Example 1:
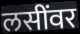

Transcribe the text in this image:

लसींवर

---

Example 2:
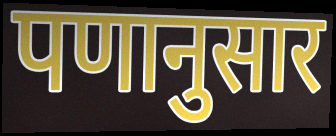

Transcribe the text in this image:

पणानुसार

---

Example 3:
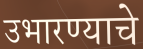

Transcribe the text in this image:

उभारण्याचे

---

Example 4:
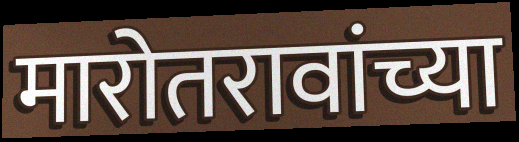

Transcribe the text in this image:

मारोतरावांच्या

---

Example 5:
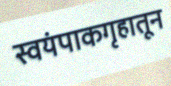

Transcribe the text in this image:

स्वयंपाकगृहातून